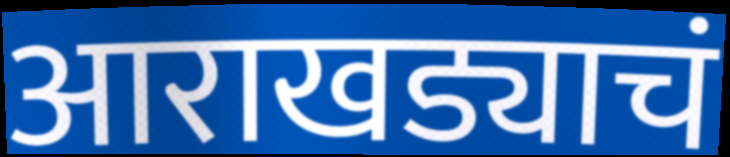
आराखड्याचं